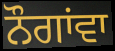
ਨੌਗਾਂਵਾ